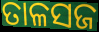
ତାଳସଜ